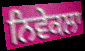
ਨਿਵੇਕਲਾ